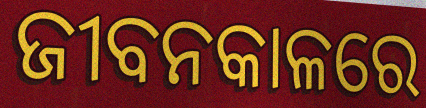
ଜୀବନକାଳରେ